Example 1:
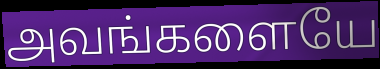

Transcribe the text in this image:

அவங்களையே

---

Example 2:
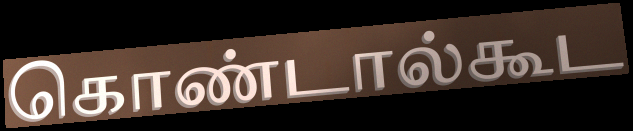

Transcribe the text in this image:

கொண்டால்கூட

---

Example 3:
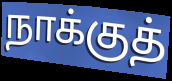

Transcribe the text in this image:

நாக்குத்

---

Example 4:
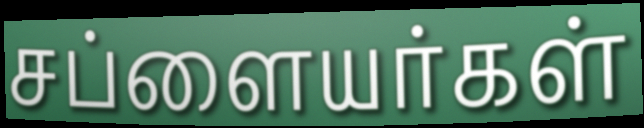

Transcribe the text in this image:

சப்ளையர்கள்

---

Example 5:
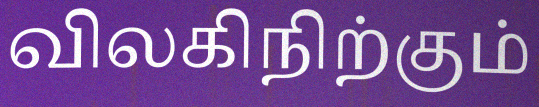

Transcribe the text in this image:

விலகிநிற்கும்